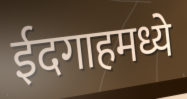
ईदगाहमध्ये